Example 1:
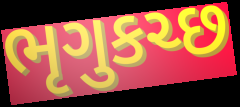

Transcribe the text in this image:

ભૃગુકચ્છ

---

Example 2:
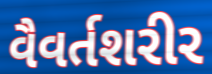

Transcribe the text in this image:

વૈવર્તશરીર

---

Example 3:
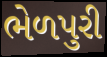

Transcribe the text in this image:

ભેળપુરી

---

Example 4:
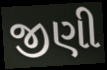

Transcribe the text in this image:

જીણી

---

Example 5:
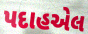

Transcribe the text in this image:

પદાહએલ